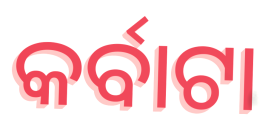
କର୍ବାଟା